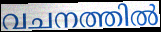
വചനത്തിൽ